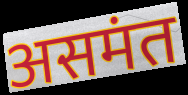
असमंत